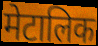
मेटालिक